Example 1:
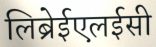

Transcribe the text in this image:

लिब्रेईएलईसी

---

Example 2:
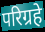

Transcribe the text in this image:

परिग्रहे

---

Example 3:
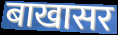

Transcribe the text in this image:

बाखासर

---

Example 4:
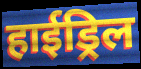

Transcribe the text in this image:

हाईड्रिल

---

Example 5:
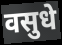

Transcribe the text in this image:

वसुधे